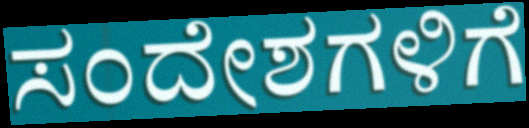
ಸಂದೇಶಗಳಿಗೆ